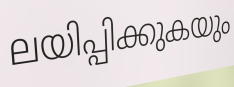
ലയിപ്പിക്കുകയും